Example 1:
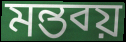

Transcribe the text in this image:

মন্তব্য়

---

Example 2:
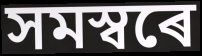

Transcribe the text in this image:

সমস্বৰে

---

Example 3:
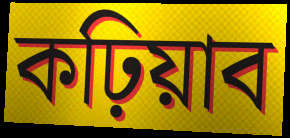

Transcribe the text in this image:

কঢ়িয়াব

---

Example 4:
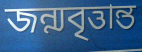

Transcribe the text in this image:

জন্মবৃত্তান্ত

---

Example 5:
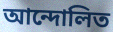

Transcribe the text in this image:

আন্দোলিত